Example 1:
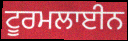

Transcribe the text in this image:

ਟੂਰਮਲਾਈਨ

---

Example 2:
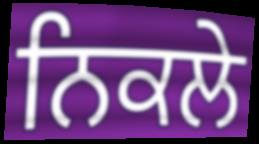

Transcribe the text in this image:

ਨਿਕਲੇ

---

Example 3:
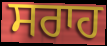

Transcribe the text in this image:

ਸਰਾਹ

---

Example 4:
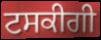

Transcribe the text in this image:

ਟਸਕੀਗੀ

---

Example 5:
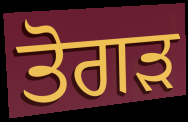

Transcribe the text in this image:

ਤੋਗੜ